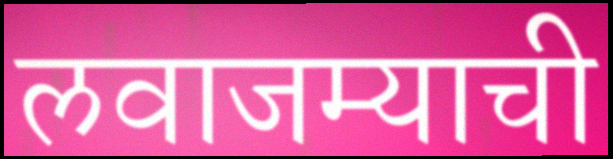
लवाजम्याची